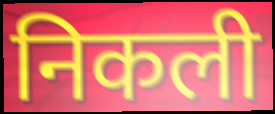
निकली